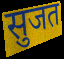
सुजत